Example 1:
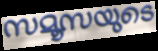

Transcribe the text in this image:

സമൂസയുടെ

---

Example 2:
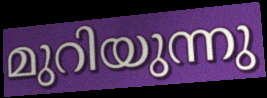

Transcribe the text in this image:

മുറിയുന്നു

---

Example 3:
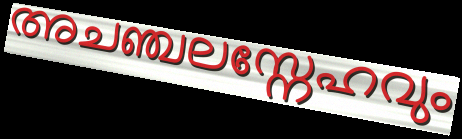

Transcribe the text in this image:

അചഞ്ചലസ്നേഹവും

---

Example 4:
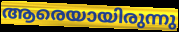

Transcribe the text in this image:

ആരെയായിരുന്നു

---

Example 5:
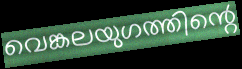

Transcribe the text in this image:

വെങ്കലയുഗത്തിന്റെ